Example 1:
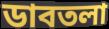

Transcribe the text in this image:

ডাবতলা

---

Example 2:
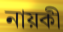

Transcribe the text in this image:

নায়কী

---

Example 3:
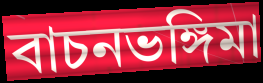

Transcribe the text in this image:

বাচনভঙ্গিমা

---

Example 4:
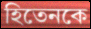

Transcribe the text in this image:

হিতেনকে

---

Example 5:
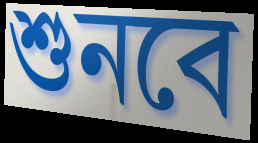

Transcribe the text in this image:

শুনবে